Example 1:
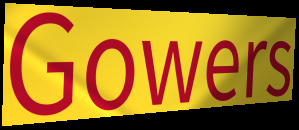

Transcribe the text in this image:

Gowers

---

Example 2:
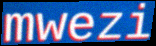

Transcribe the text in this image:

mwezi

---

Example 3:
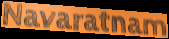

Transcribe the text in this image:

Navaratnam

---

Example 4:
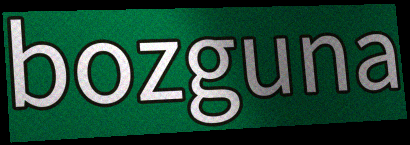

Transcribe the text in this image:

bozguna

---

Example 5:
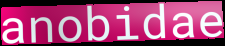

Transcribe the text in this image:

anobidae